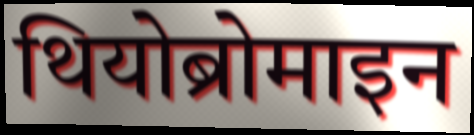
थियोब्रोमाइन